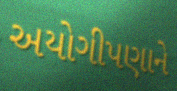
અયોગીપણાને